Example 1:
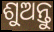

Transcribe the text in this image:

ଶୁଅନ୍ତୁ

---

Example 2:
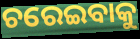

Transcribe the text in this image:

ଚରେଇବାକୁ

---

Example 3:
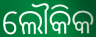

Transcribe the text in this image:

ଲୌକିକ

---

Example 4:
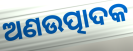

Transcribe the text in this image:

ଅଣଉତ୍ପାଦକ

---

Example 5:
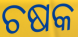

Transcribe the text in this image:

ଚଷକ